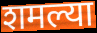
शमल्या